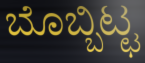
ಬೊಬ್ಬಿಟ್ಟ